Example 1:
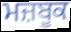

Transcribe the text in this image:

ਮਜ਼ਬੂਕ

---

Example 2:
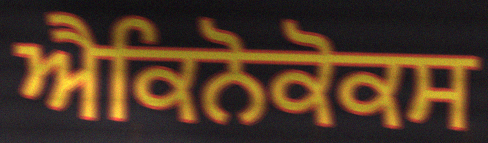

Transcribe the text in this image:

ਐਕਿਨੋਕੋਕਸ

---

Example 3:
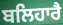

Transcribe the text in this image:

ਬਲਿਹਾਰੈ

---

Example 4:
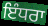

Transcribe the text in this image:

ਇੰਧਰਾ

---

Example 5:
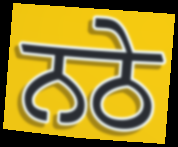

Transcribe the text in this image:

ਨਠੇ